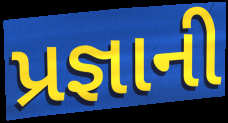
પ્રજ્ઞાની